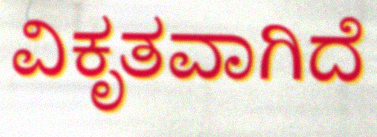
ವಿಕೃತವಾಗಿದೆ